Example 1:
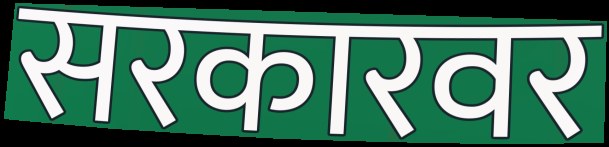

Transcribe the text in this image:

सरकारवर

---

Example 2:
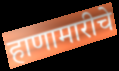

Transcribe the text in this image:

हाणामारीचे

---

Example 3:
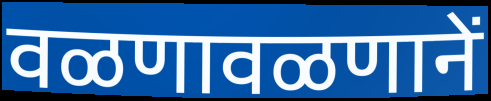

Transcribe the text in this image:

वळणावळणानें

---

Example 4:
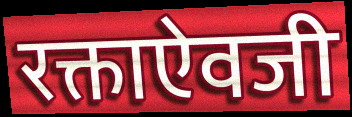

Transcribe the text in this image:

रक्ताऐवजी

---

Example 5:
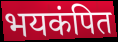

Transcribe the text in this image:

भयकंपित